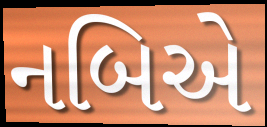
નબિએ